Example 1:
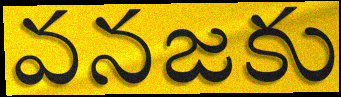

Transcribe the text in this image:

వనజకు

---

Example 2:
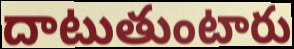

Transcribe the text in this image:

దాటుతుంటారు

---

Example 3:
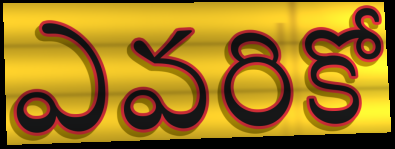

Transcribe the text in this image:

ఎవరికో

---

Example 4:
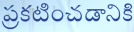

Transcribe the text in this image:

ప్రకటించడానికి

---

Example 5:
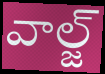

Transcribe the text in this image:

వాల్జ్